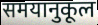
समयानुकूल